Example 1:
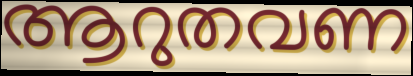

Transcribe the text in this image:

ആറുതവണ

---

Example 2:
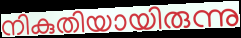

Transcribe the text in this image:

നികുതിയായിരുന്നു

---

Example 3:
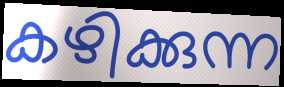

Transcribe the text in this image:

കഴിക്കുന്ന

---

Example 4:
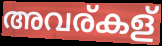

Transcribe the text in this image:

അവര്കള്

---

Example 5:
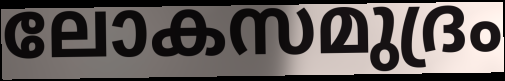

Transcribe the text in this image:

ലോകസമുദ്രം